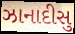
ઝાનાદીસુ